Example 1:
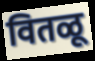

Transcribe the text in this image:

वितळू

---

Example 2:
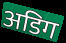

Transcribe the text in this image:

अडिग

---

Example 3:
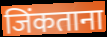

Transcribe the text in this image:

जिंकताना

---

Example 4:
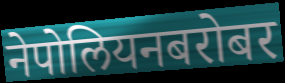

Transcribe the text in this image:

नेपोलियनबरोबर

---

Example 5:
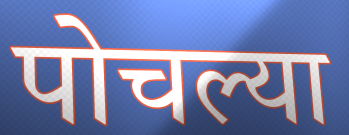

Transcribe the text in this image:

पोचल्या